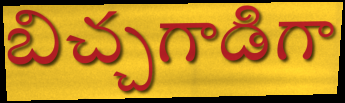
బిచ్చగాడిగా